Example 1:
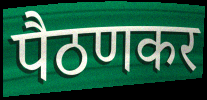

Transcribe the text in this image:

पैठणकर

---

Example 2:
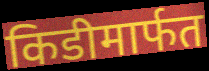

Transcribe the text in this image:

किडीमार्फत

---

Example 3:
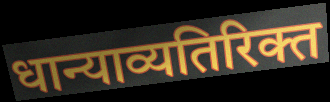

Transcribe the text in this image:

धान्याव्यतिरिक्त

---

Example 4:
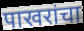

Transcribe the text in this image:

पाखरांचा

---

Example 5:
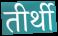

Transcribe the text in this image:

तीर्थी